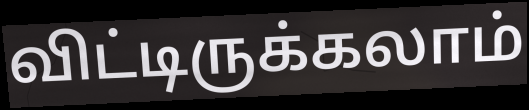
விட்டிருக்கலாம்